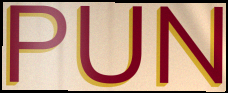
PUN